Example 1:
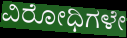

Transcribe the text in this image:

ವಿರೋಧಿಗಳೇ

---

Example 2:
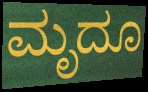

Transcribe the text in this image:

ಮೃದೂ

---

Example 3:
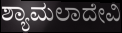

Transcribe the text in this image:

ಶ್ಯಾಮಲಾದೇವಿ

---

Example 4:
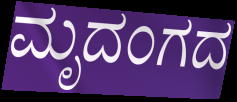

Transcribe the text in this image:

ಮೃದಂಗದ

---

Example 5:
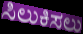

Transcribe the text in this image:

ಸಿಲುಕಿಸಲು